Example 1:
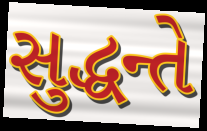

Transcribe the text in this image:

સુદ્ધન્તે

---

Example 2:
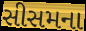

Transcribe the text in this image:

સીસમના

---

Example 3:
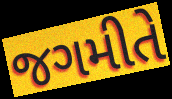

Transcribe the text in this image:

જગમીતે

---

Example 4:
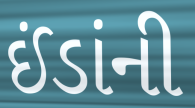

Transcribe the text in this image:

ઈંડાંની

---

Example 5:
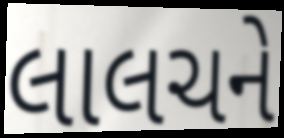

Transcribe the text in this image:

લાલચને